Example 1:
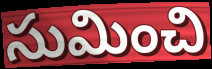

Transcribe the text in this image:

సుమించి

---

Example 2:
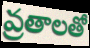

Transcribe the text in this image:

వ్రతాలతో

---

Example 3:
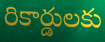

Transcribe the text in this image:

రికార్డులకు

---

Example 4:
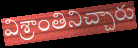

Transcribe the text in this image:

విశ్రాంతినిచ్చారు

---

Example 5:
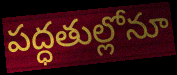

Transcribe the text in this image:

పద్ధతుల్లోనూ